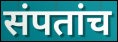
संपतांच